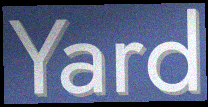
Yard